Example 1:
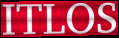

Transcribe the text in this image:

ITLOS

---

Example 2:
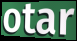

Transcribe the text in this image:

otar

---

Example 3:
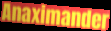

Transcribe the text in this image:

Anaximander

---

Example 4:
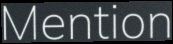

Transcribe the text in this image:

Mention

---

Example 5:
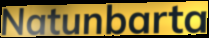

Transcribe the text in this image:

Natunbarta